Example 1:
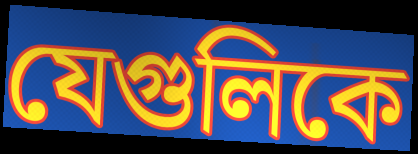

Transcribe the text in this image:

যেগুলিকে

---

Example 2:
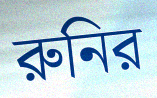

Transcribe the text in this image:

রুনির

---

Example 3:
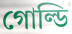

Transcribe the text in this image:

গোল্ডি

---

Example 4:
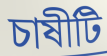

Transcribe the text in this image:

চাষীটি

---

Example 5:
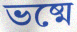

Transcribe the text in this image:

ভষ্মে